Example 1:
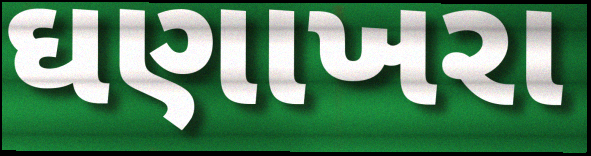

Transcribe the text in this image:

ઘણાખરા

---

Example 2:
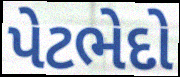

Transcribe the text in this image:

પેટભેદો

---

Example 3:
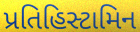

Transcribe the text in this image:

પ્રતિહિસ્ટામિન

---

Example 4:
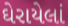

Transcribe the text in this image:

ઘેરાયેલાં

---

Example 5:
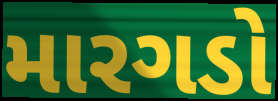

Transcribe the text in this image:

મારગડો